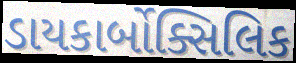
ડાયકાર્બોક્સિલિક